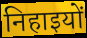
निहाइयों